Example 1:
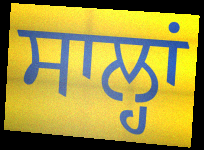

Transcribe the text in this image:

ਸਾਲ੍ਹਾਂ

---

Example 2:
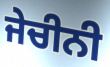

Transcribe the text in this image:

ਜੇਚੀਨੀ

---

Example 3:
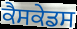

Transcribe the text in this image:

ਕੈਸਕੇਡਸ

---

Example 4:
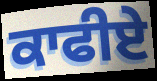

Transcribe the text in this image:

ਕਾਫੀਏ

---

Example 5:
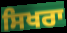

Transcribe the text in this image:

ਸਿਖਰਾ